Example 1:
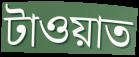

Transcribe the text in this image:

টাওয়াত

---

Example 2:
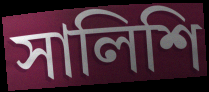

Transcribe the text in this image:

সালিশি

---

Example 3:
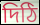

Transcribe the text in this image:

দিঠি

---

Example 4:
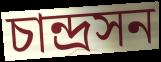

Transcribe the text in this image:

চান্দ্রসন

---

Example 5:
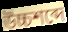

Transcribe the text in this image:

উচ্চশব্দে